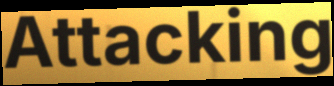
Attacking